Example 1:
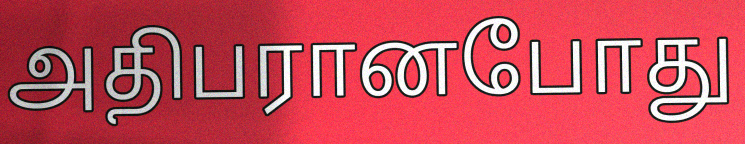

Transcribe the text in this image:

அதிபரானபோது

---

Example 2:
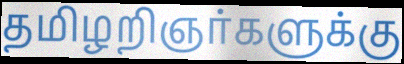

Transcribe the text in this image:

தமிழறிஞர்களுக்கு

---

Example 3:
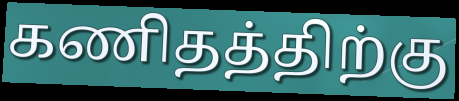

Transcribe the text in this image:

கணிதத்திற்கு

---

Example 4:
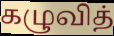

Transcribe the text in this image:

கழுவித்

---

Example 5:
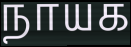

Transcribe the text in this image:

நாயக